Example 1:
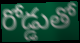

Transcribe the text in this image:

రోడ్డుతో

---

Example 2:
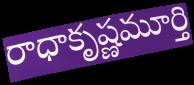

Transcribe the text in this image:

రాధాకృష్ణమూర్తి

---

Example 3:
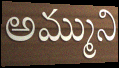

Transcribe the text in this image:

అమ్ముని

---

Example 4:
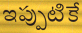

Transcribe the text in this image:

ఇప్పుటికే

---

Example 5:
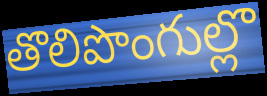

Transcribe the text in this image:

తొలిపొంగుల్లొ